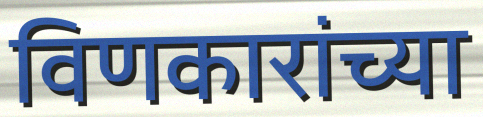
विणकारांच्या